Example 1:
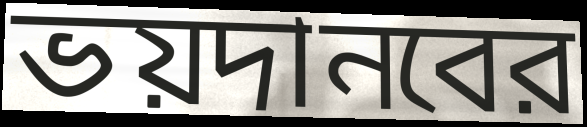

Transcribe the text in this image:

ভয়দানবের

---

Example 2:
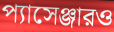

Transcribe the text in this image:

প্যাসেঞ্জারও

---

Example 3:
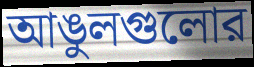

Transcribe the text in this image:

আঙুলগুলোর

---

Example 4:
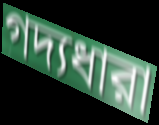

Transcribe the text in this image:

গদ্যধারা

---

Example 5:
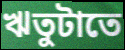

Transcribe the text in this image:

ঋতুটাতে